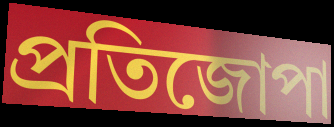
প্ৰতিজোপা